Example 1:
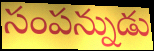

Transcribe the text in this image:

సంపన్నుడు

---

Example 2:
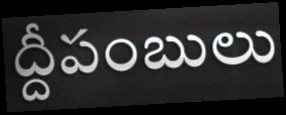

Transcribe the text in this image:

ద్దీపంబులు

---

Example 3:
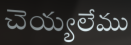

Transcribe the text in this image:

చెయ్యలేము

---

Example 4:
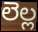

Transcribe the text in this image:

లెల్ల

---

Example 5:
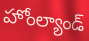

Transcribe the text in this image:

హోంల్యాండ్